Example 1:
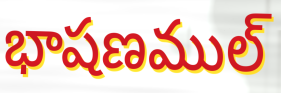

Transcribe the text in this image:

భాషణముల్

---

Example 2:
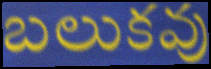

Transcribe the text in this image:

బలుకవు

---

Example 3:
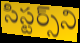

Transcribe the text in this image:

సిస్టర్స్‌ని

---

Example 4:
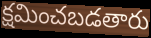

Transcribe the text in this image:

క్షమించబడతారు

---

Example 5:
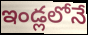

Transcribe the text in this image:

ఇండ్లలోనే